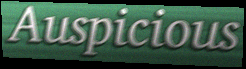
Auspicious